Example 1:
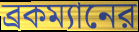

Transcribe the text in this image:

ব্রকম্যানের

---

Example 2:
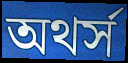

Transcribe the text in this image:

অথর্স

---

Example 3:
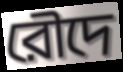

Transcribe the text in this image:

রৌদে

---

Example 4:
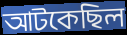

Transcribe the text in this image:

আটকেছিল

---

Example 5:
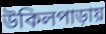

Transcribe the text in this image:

উকিলপাড়ায়